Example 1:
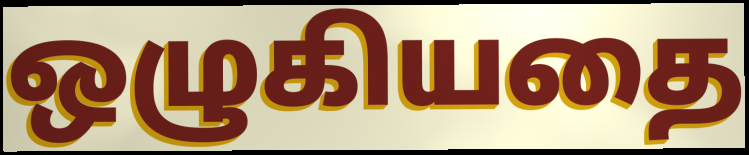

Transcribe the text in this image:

ஒழுகியதை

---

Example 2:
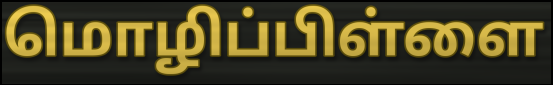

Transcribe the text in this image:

மொழிப்பிள்ளை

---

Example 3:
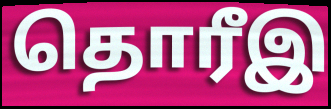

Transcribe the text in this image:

தொரீஇ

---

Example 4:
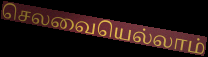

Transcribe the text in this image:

செலவையெல்லாம்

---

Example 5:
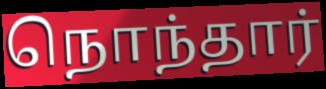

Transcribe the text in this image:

நொந்தார்